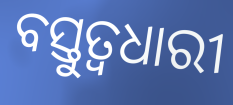
ବସ୍ତୁତ୍ୱଧାରୀ